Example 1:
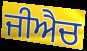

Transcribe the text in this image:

ਜੀਐਚ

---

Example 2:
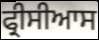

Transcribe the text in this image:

ਫ੍ਰੀਸੀਆਸ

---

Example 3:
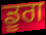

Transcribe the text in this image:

ਡੂਗ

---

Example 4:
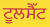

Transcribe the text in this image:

ਟੂਲਸੈੱਟ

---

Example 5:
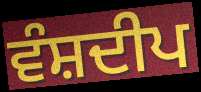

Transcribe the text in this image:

ਵੰਸ਼ਦੀਪ